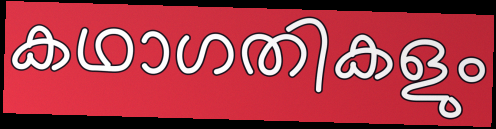
കഥാഗതികളും